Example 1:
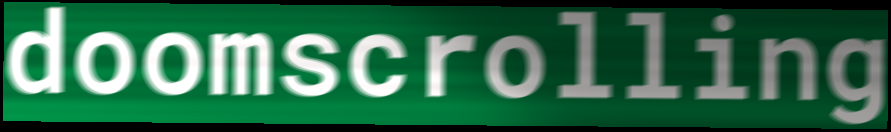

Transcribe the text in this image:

doomscrolling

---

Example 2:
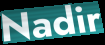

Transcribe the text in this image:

Nadir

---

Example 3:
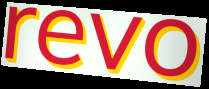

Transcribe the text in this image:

revo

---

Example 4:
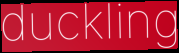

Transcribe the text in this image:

duckling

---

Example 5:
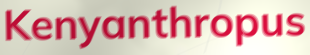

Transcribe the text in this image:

Kenyanthropus